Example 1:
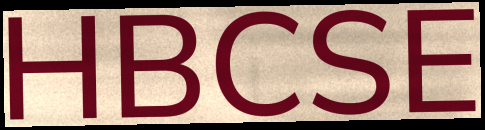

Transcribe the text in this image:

HBCSE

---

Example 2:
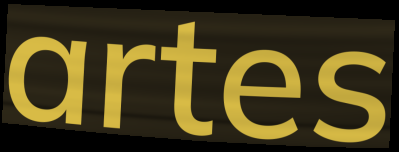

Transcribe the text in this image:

artes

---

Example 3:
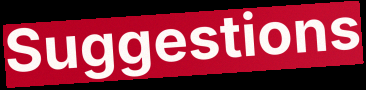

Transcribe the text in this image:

Suggestions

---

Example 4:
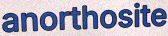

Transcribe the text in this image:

anorthosite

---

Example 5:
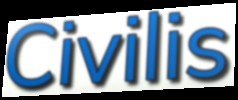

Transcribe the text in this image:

Civilis